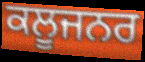
ਕਲੂਜਨਰ